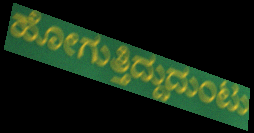
ಹೋಗುತ್ತಿದ್ದುದುಂಟು